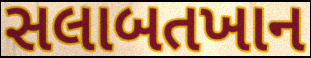
સલાબતખાન